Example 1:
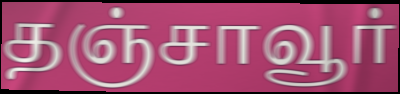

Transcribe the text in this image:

தஞ்சாவூர்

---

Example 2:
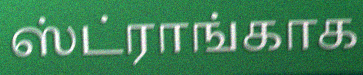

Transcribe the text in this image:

ஸ்ட்ராங்காக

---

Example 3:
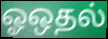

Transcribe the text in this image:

ஓஒதல்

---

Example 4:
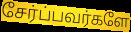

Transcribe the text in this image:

சேர்ப்பவர்களே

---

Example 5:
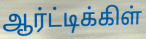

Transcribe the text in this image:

ஆர்ட்டிக்கிள்